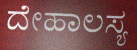
ದೇಹಾಲಸ್ಯ